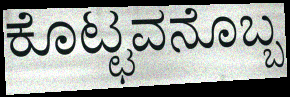
ಕೊಟ್ಟವನೊಬ್ಬ